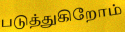
படுத்துகிறோம்